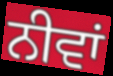
ਨੀਵਾਂ